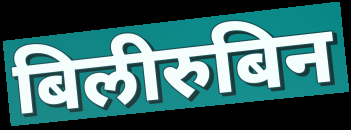
बिलीरुबिन